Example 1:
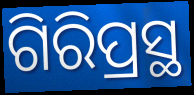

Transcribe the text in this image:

ଗିରିପ୍ରସ୍ଥ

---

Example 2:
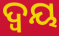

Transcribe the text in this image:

ଦ୍ୱୟ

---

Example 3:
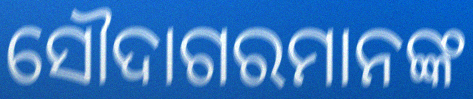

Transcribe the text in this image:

ସୌଦାଗରମାନଙ୍କ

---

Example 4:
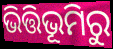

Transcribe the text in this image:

ଭିତ୍ତିଭୂମିରୁ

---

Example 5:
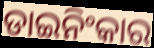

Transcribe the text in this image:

ଡାଇନିଂକାର